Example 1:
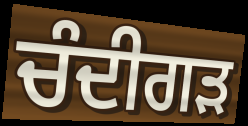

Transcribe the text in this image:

ਚੰਦੀਗੜ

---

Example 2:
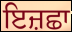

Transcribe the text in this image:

ਇਜ਼ਛਾ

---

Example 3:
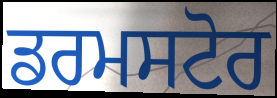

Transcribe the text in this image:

ਡਰਮਸਟੋਰ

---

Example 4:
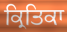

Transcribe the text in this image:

ਕ੍ਰਿਤਿਕਾ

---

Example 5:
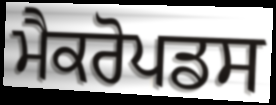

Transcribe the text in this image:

ਮੈਕਰੋਪਡਸ